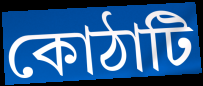
কোঠাটি